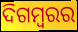
ଦିଗମ୍ୱରର